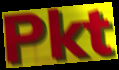
Pkt